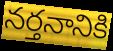
నర్తనానికి